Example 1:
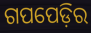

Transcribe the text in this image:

ଗପପେଡ଼ିର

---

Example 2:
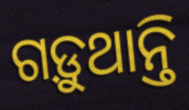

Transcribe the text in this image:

ଗଡ଼ୁଥାନ୍ତି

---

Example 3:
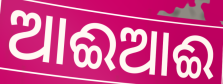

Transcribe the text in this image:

ଆଈଆଈ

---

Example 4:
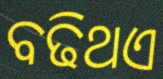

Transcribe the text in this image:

ବଢିଥଏ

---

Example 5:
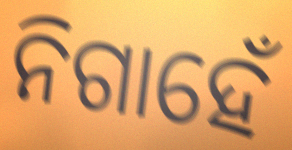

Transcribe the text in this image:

ନିଗାହେଁ